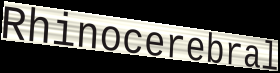
Rhinocerebral